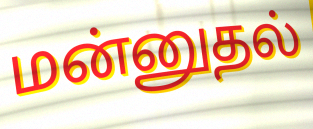
மன்னுதல்